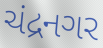
ચંદ્રનગર